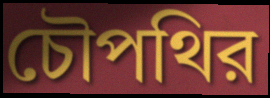
চৌপথির